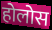
होलोस